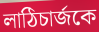
লাঠিচার্জকে